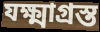
যক্ষ্মাগ্রস্ত